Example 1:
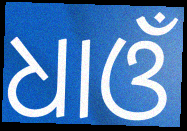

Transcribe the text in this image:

ଧାଓଁ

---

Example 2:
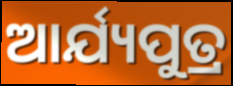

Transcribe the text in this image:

ଆର୍ଯ୍ୟପୁତ୍ର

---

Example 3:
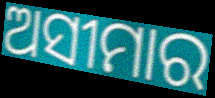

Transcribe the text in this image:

ଅସୀମାର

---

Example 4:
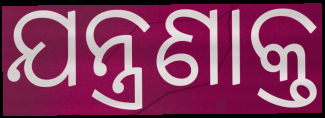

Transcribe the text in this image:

ଯନ୍ତ୍ରଣାକ୍ତ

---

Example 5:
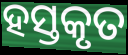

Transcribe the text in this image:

ହସ୍ତକୃତ